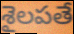
శైలపతే